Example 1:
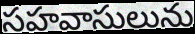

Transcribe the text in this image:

సహవాసులును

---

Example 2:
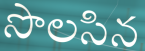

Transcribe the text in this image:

సొలసిన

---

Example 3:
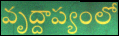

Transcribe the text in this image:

వృద్దాప్యంలో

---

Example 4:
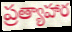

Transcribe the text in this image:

ప్రత్యాహార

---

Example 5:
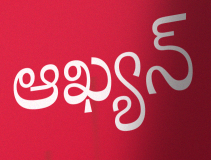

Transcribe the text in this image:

ఆఖ్యన్